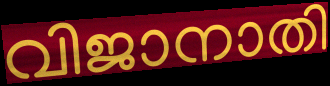
വിജാനാതി